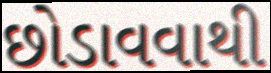
છોડાવવાથી